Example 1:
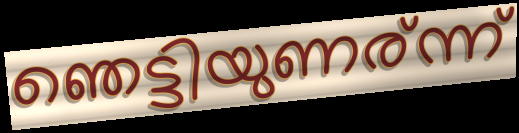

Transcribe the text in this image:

ഞെട്ടിയുണര്ന്ന്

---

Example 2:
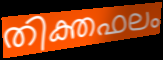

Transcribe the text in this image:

തിക്തഫലം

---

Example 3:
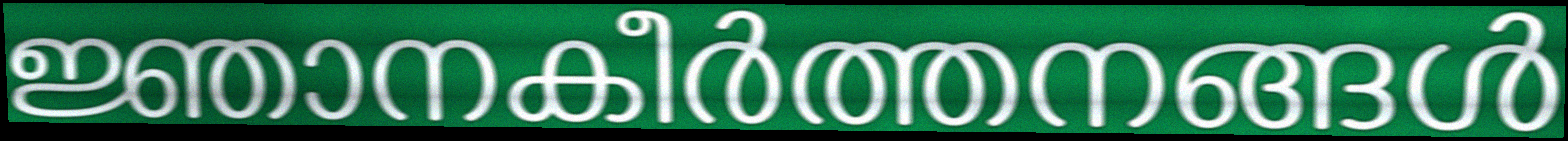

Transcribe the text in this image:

ജ്ഞാനകീർത്തനങ്ങൾ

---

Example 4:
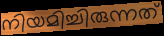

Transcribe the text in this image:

നിയമിച്ചിരുന്നത്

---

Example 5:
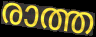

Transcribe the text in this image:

രാത്ത